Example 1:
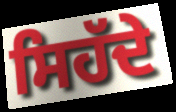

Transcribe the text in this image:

ਸਿਹੱਦੇ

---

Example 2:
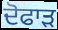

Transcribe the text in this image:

ਦੋਫਾੜ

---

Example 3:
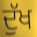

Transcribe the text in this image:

ਦੁੱਖ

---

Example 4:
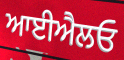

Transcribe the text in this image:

ਆਈਐਲਓ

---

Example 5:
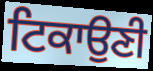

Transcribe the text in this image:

ਟਿਕਾਉਣੀ